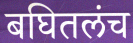
बघितलंच